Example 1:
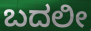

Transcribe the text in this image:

ಬದಲೀ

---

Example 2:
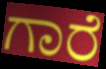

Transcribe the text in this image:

ಗಾರೆ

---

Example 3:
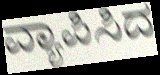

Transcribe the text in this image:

ವ್ಯಾಪಿಸಿದ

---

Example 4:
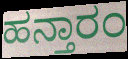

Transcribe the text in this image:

ಹನ್ತಾರಂ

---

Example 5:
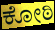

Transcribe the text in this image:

ಕೋಠಿ